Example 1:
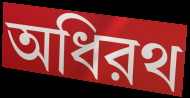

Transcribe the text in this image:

অধিরথ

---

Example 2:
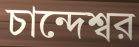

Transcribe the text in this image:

চান্দেশ্বর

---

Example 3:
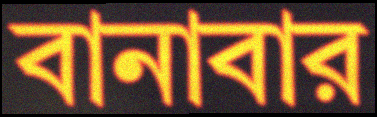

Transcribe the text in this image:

বানাবার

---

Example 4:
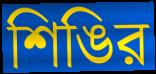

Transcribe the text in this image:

শিঙির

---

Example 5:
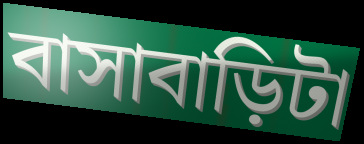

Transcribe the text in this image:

বাসাবাড়িটা